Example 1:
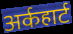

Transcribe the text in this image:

अर्कहार्ट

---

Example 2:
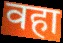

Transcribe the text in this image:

वहा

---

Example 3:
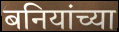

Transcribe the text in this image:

बनियांच्या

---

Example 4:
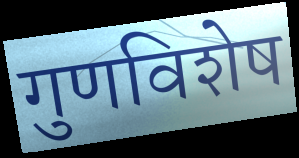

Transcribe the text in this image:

गुणविशेष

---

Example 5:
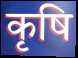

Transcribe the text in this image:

कृषि